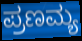
ಪ್ರಣಮ್ಯ